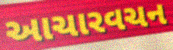
આચારવચન